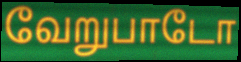
வேறுபாடோ